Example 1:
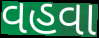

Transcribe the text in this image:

વહવા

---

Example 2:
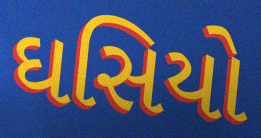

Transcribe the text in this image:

ઘસિયો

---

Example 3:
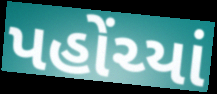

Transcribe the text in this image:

પહોંચ્યાં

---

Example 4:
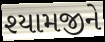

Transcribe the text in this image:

શ્યામજીને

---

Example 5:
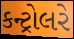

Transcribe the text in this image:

કન્ટ્રોલરે